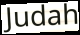
Judah